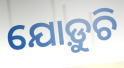
ଯୋଡ଼ୁଚି